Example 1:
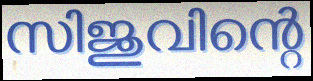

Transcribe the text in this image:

സിജുവിന്റെ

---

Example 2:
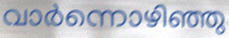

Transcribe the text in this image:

വാർന്നൊഴിഞ്ഞു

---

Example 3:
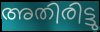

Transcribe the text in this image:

അതിരിട്ടു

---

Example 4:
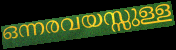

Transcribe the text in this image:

ഒന്നരവയസ്സുള്ള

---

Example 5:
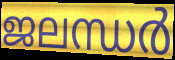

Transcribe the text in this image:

ജലന്ധർ